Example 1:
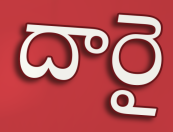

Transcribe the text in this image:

దారై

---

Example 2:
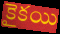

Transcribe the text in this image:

కైకయి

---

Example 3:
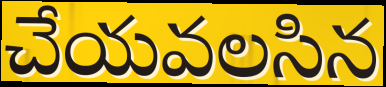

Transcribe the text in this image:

చేయవలసిన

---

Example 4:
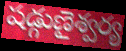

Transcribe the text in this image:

షడ్గుణైశ్వర్య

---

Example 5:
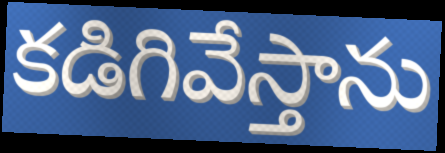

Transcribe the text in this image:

కడిగివేస్తాను